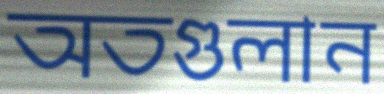
অতগুলান